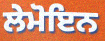
ਲੇਮੋਇਨ